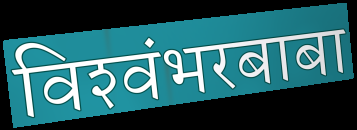
विश्वंभरबाबा